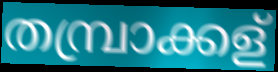
തമ്പ്രാക്കള്